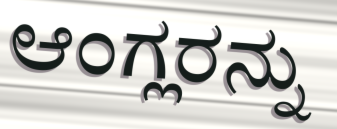
ಆಂಗ್ಲರನ್ನು